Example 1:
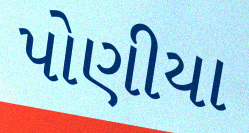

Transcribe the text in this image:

પોણીયા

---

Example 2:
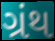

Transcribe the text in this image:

ગ્રંથ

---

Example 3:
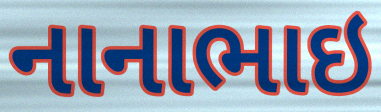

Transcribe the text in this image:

નાનાભાઇ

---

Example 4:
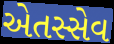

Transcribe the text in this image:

એતસ્સેવ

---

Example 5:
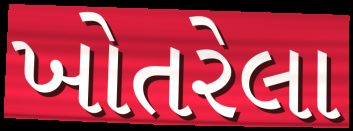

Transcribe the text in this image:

ખોતરેલા